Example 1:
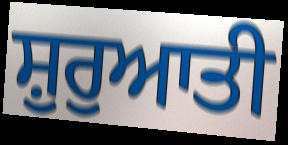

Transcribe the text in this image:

ਸ਼ੁਰੁਆਤੀ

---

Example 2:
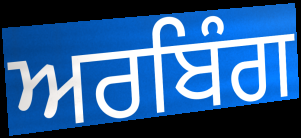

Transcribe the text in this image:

ਅਰਬਿੰਗ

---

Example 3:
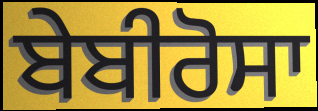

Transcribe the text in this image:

ਬੇਬੀਰੋਸਾ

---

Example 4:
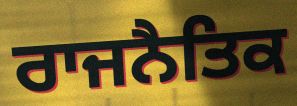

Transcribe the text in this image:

ਰਾਜਨੈਤਿਕ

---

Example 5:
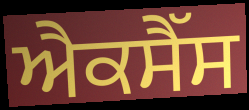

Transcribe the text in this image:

ਐਕਸੈੱਸ